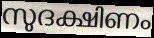
സുദക്ഷിണം